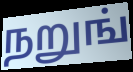
நறுங்